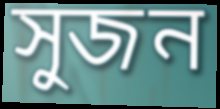
সুজন